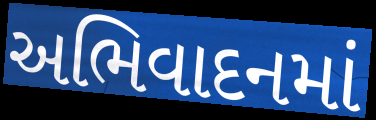
અભિવાદનમાં